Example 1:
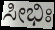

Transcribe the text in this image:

ಸೀಭಿಃ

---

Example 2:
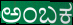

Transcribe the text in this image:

ಅಂಬಕ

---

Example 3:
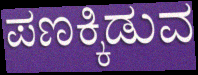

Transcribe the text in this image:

ಪಣಕ್ಕಿಡುವ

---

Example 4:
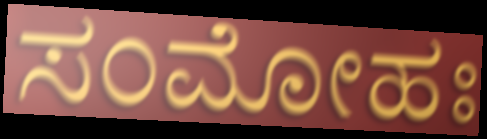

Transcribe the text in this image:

ಸಂಮೋಹಃ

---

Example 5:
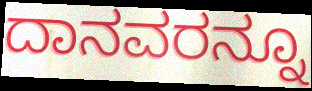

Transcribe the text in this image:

ದಾನವರನ್ನೂ